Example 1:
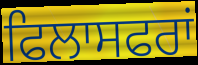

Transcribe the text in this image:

ਫਿਲਾਸਫਰਾਂ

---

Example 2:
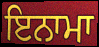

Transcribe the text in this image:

ਇਨਾਮਾ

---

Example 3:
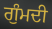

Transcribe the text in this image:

ਗੁੰਮਦੀ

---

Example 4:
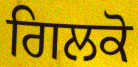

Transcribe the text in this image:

ਗਿਲਕੋ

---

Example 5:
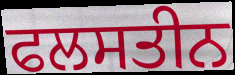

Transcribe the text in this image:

ਫਲਸਤੀਨ